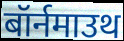
बॉर्नमाउथ